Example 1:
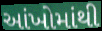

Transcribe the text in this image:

આંખોમાંથી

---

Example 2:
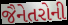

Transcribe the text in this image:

જૈનેતરોની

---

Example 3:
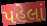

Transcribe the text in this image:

પહેલાં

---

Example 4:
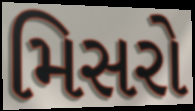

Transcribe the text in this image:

મિસરો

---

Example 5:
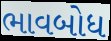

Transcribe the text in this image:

ભાવબોધ